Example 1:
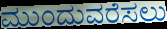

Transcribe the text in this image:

ಮುಂದುವರೆಸಲು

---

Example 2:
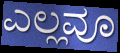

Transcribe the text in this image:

ಎಲ್ಲವೂ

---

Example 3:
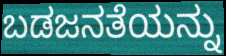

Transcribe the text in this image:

ಬಡಜನತೆಯನ್ನು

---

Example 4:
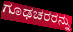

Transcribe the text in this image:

ಗೂಢಚರರನ್ನು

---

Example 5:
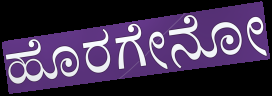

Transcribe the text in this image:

ಹೊರಗೇನೋ